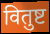
वितुष्ट